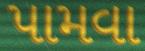
પામવા